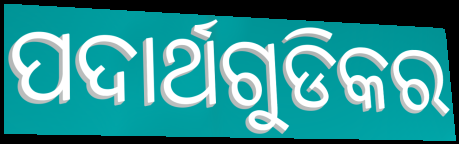
ପଦାର୍ଥଗୁଡିକର